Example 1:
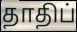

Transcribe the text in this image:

தாதிப்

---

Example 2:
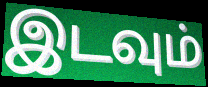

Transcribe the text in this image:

இடவும்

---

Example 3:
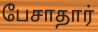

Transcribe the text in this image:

பேசாதார்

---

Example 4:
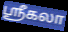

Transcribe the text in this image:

ஶ்ரீகலா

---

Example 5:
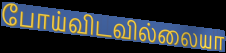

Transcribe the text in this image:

போய்விடவில்லையா